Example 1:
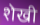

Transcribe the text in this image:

शेखी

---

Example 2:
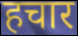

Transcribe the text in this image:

हचार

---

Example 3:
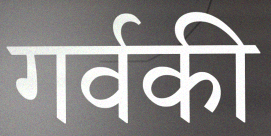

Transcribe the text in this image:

गर्वकी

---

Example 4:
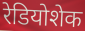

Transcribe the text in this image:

रेडियोशेक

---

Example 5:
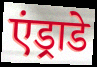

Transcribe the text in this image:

एंड्राडे